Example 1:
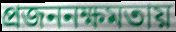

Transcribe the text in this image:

প্রজননক্ষমতায়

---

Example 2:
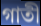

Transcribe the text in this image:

গাতী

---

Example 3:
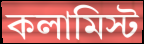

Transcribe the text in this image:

কলামিস্ট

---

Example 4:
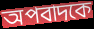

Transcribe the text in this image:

অপবাদকে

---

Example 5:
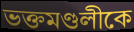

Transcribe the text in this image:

ভক্তমণ্ডলীকে